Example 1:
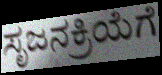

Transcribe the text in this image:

ಸೃಜನಕ್ರಿಯೆಗೆ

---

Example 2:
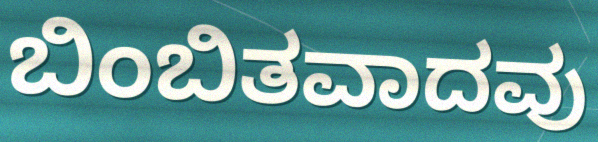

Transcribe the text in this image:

ಬಿಂಬಿತವಾದವು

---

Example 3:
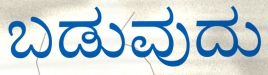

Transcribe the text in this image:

ಬಡುವುದು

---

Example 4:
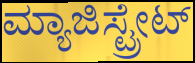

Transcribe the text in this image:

ಮ್ಯಾಜಿಸ್ಟ್ರೇಟ್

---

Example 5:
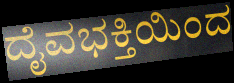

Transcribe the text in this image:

ದೈವಭಕ್ತಿಯಿಂದ